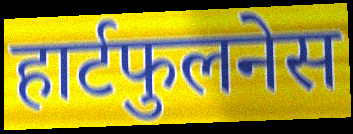
हार्टफुलनेस